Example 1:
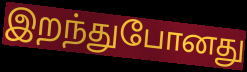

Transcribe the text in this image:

இறந்துபோனது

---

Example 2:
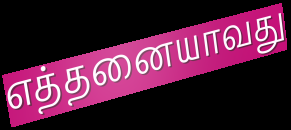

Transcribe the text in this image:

எத்தனையாவது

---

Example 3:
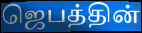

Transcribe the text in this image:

ஜெபத்தின்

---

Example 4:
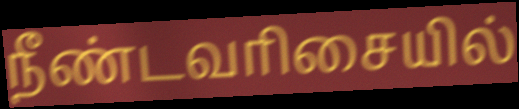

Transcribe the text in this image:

நீண்டவரிசையில்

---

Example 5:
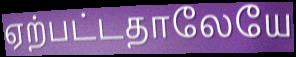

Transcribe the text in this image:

ஏற்பட்டதாலேயே